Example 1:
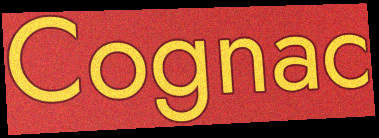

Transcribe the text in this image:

Cognac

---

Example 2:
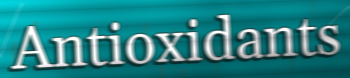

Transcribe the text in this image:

Antioxidants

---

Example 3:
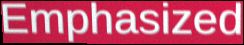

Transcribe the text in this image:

Emphasized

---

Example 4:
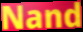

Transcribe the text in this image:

Nand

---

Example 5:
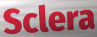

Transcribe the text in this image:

Sclera